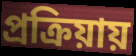
প্রক্রিয়ায়